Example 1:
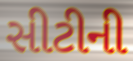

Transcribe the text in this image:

સીટીની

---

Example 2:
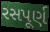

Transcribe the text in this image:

રસપૂર્ણ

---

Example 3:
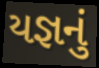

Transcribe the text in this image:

યજ્ઞનું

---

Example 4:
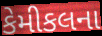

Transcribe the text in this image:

કેમીકલના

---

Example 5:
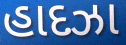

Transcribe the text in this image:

હાદઝા